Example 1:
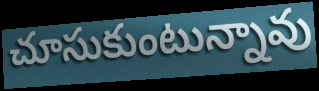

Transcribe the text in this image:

చూసుకుంటున్నావు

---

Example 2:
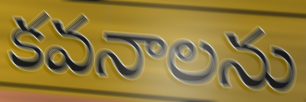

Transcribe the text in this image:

కవనాలను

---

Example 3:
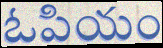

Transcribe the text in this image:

ఓపియం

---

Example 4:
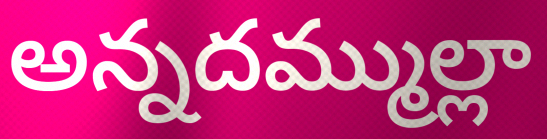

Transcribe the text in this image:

అన్నదమ్ముల్లా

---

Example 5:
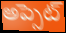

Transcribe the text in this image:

అప్సెట్